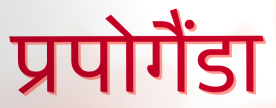
प्रपोगैंडा